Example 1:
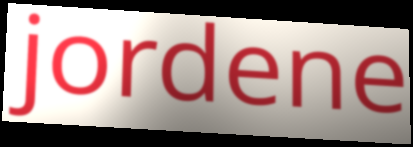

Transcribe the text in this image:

jordene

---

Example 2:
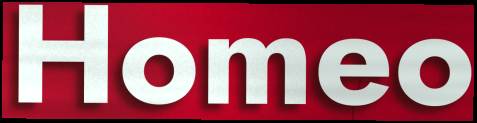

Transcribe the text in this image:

Homeo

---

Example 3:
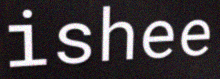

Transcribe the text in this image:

ishee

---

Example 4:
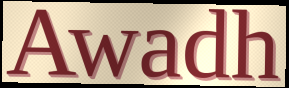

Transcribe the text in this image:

Awadh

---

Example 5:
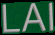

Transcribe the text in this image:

LAI